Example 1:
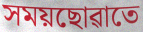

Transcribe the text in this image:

সময়ছোৱাতে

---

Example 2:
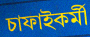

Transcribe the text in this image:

চাফাইকৰ্মী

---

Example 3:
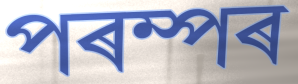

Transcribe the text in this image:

পৰম্পৰ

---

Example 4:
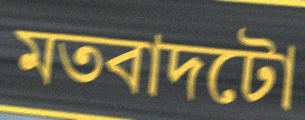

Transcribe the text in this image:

মতবাদটো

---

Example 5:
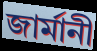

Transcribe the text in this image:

জাৰ্মানী